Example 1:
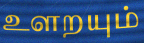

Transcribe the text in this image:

உளறயும்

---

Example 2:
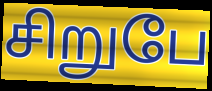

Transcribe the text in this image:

சிறுபே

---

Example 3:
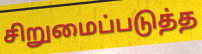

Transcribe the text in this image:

சிறுமைப்படுத்த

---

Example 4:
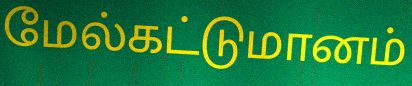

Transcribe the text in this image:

மேல்கட்டுமானம்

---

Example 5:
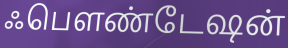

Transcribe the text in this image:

ஃபௌண்டேஷன்